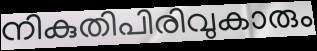
നികുതിപിരിവുകാരും